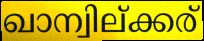
ഖാന്വില്ക്കര്